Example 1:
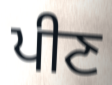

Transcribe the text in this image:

ਪੀਣ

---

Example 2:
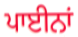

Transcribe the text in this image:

ਪਾਈਨਾਂ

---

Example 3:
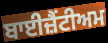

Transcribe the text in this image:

ਬਾਈਜ਼ੈਂਟੀਅਮ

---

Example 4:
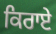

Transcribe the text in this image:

ਕਿਰਾਏ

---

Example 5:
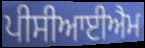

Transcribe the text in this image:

ਪੀਸੀਆਈਐਮ